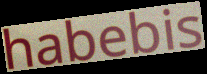
habebis